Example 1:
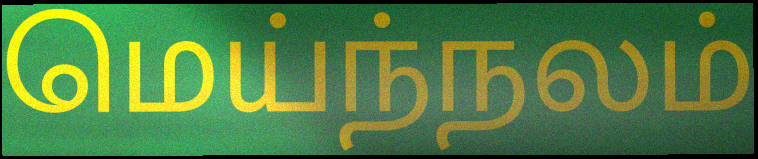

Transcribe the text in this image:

மெய்ந்நலம்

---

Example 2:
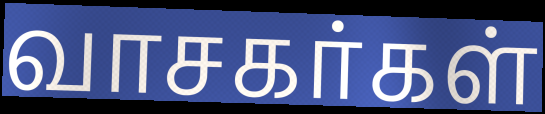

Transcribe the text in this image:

வாசகர்கள்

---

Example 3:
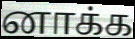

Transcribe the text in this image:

னாக்க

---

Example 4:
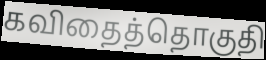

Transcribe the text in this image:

கவிதைத்தொகுதி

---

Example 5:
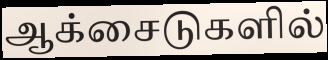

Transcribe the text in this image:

ஆக்சைடுகளில்